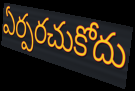
ఏర్పరచుకోదు